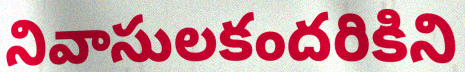
నివాసులకందరికిని